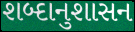
શબ્દાનુશાસન